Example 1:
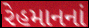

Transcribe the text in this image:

રેહમાનનાં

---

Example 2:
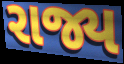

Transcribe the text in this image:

રાજ્ય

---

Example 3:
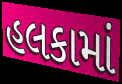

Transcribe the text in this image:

હલકામાં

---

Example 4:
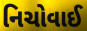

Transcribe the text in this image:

નિચોવાઈ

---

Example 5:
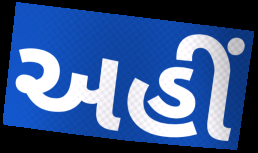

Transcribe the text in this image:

અહીં